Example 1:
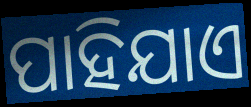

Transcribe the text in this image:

ପାହିଯାଏ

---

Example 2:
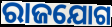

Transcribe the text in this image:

ରାଜଯୋଗ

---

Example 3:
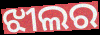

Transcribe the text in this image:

ଝୀଲର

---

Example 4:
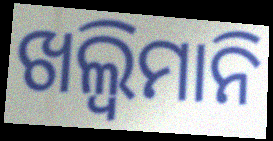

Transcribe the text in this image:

ଖଲ୍ୱିମାନି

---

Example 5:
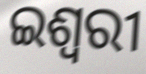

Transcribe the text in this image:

ଇଶ୍ୱରୀ